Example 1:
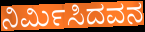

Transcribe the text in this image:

ನಿರ್ಮಿಸಿದವನ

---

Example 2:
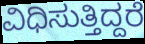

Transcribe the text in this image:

ವಿಧಿಸುತ್ತಿದ್ದರೆ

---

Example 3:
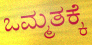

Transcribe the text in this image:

ಒಮ್ಮತಕ್ಕೆ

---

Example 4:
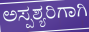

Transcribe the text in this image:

ಅಸ್ಪಶ್ಯರಿಗಾಗಿ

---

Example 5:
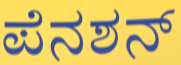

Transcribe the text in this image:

ಪೆನಶನ್